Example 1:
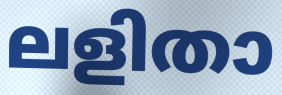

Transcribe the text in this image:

ലളിതാ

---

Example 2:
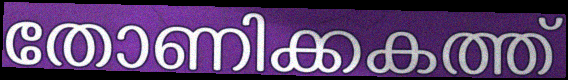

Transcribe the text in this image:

തോണിക്കകത്ത്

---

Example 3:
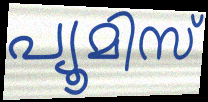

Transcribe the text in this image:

പ്യൂമിസ്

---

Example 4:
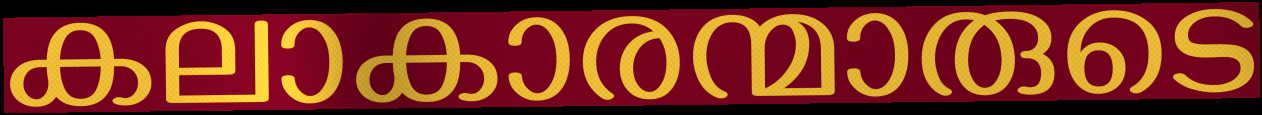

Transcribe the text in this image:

കലാകാരന്മാരുടെ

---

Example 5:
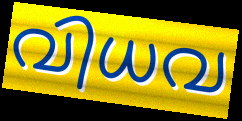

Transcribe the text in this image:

വിധവ